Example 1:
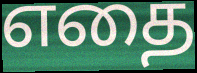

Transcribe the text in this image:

எதை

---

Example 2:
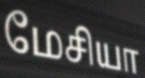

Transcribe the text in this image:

மேசியா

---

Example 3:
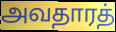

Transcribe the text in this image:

அவதாரத்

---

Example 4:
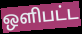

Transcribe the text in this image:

ஒளிபட்ட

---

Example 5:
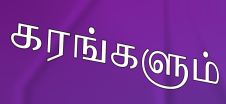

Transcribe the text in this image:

கரங்களும்